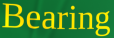
Bearing